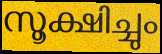
സൂക്ഷിച്ചും